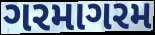
ગરમાગરમ